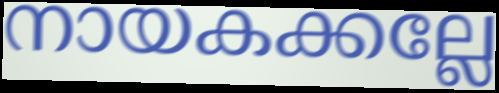
നായകക്കല്ലേ